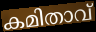
കമിതാവ്